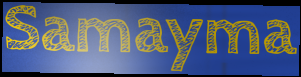
Samayma